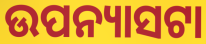
ଉପନ୍ୟାସଟା